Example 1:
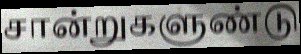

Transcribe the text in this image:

சான்றுகளுண்டு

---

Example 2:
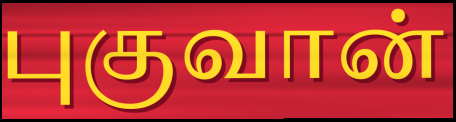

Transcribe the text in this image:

புகுவான்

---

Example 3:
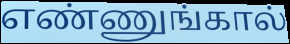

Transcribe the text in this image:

எண்ணுங்கால்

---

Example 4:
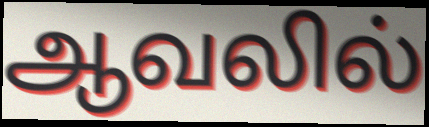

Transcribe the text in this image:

ஆவலில்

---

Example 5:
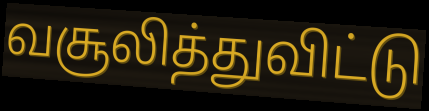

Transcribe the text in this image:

வசூலித்துவிட்டு